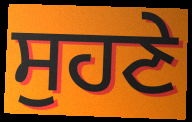
ਸੁਹਣੇ